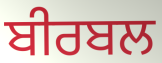
ਬੀਰਬਲ